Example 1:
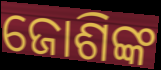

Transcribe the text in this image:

ଜୋଶିଙ୍କ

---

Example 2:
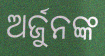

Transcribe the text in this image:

ଅର୍ଜୁନଙ୍କ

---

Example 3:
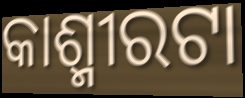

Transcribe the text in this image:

କାଶ୍ମୀରଟା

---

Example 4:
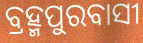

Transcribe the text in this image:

ବ୍ରହ୍ମପୁରବାସୀ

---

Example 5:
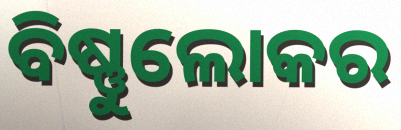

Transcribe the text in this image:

ବିଷ୍ଣୁଲୋକର